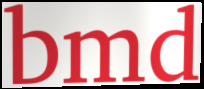
bmd